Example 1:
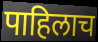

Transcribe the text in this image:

पाहिलाच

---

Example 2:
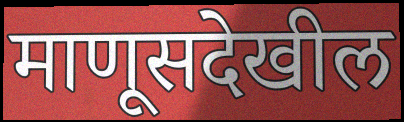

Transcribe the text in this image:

माणूसदेखील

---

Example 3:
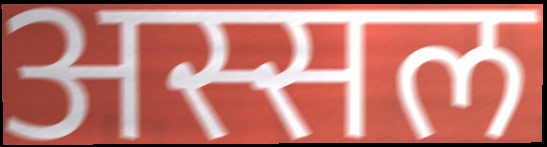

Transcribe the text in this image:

अस्सल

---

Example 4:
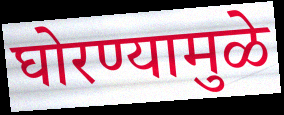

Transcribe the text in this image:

घोरण्यामुळे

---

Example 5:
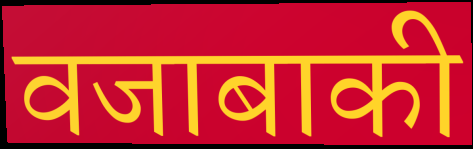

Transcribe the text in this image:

वजाबाकी